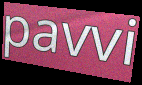
pavvi